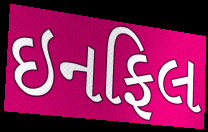
ઇનફિલ